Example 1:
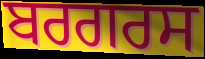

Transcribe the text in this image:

ਬਰਗਰਸ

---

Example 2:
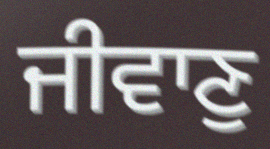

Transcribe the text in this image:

ਜੀਵਾਣੁ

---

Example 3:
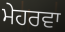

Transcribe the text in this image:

ਮੇਹਰਵਾ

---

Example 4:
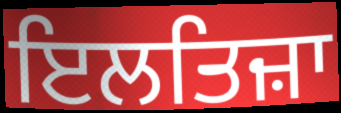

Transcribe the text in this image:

ਇਲਤਿਜ਼ਾ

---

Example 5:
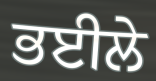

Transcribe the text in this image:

ਭਈਲੇ